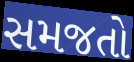
સમજતો